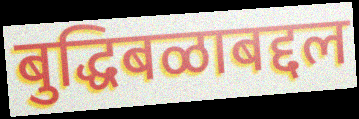
बुद्धिबळाबद्दल